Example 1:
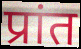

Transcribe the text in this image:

प्रांत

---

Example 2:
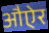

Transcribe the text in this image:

औऐर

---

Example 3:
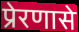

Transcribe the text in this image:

प्रेरणासे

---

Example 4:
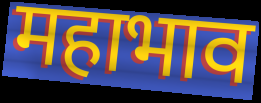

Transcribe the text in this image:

महाभाव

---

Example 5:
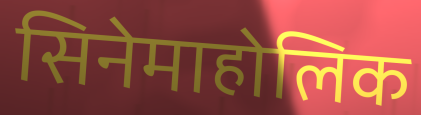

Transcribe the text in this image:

सिनेमाहोलिक